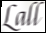
Lall